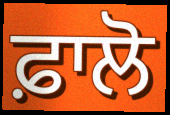
ਫ਼ਾਲੋ